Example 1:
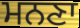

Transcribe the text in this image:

ਮਨਣਾ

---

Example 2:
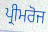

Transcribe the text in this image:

ਪ੍ਰੀਮਰੋਜ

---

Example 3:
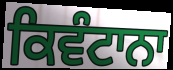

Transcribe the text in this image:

ਕਿਵੰਟਾਨਾ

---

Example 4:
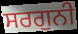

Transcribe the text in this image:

ਸਰਗੁਨੀ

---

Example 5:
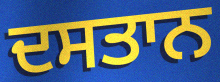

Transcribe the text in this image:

ਦਸਤਾਨ